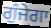
ਗੁੰਜੇਗਾ